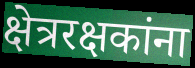
क्षेत्ररक्षकांना